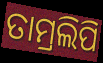
ତାମ୍ରଲିପି